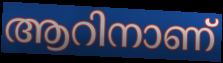
ആറിനാണ്